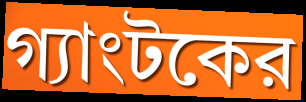
গ্যাংটকের